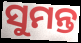
ସୁମନ୍ତ